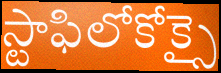
స్టాఫిలోకోక్సై